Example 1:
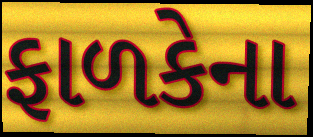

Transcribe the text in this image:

ફાળકેના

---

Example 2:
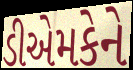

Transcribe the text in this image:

ડીએમકેને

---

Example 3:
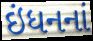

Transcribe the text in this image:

ઇંધનનાં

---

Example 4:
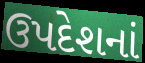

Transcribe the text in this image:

ઉપદેશનાં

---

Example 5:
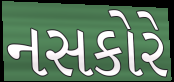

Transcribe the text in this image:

નસકોરે